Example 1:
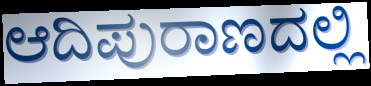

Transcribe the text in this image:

ಆದಿಪುರಾಣದಲ್ಲಿ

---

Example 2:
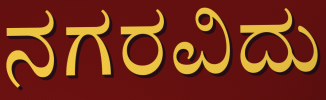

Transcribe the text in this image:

ನಗರವಿದು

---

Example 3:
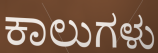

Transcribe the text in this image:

ಕಾಲುಗಳು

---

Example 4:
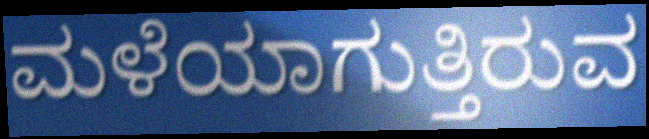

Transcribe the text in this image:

ಮಳೆಯಾಗುತ್ತಿರುವ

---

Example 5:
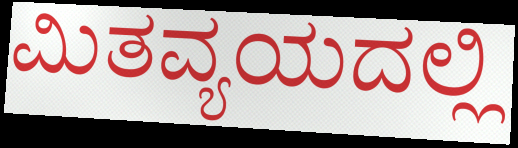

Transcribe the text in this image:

ಮಿತವ್ಯಯದಲ್ಲಿ